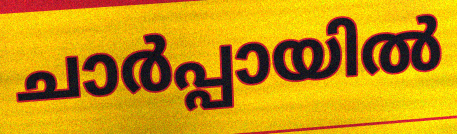
ചാർപ്പായിൽ